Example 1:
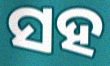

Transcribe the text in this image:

ସହ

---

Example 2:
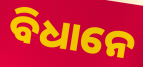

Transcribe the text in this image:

ବିଧାନେ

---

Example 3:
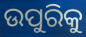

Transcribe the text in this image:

ଉପୁରିକୁ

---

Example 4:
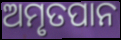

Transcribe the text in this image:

ଅମୃତପାନ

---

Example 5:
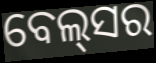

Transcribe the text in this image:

ବେଲ୍‌ସର